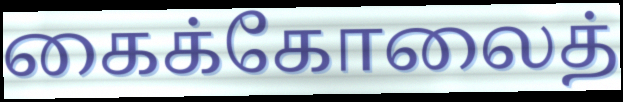
கைக்கோலைத்